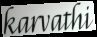
karvathi